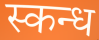
स्कन्ध